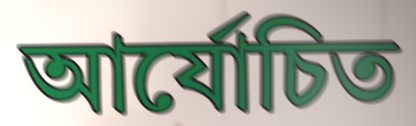
আর্যোচিত